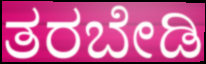
ತರಬೇಡಿ